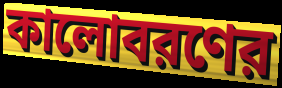
কালোবরণের